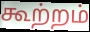
கூற்றம்